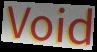
Void